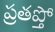
ప్రతప్తో